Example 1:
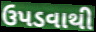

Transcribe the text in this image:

ઉપડવાથી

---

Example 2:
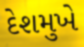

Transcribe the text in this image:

દેશમુખે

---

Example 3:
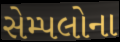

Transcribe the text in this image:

સેમ્પલોના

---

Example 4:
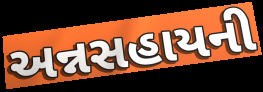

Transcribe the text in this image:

અન્નસહાયની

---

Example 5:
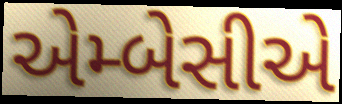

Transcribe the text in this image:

એમ્બેસીએ